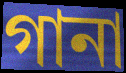
গানা